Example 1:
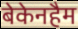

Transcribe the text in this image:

बेकेनहैम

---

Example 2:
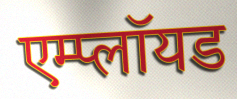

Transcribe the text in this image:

एम्प्लॉयड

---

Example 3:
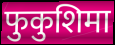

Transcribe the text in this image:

फुकुशिमा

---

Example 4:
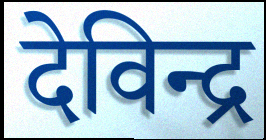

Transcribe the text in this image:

देविन्द्र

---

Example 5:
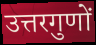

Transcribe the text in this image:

उत्तरगुणों